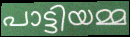
പാട്ടിയമ്മ